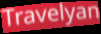
Travelyan